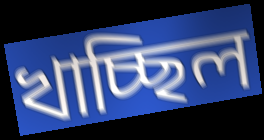
খাচ্ছিল